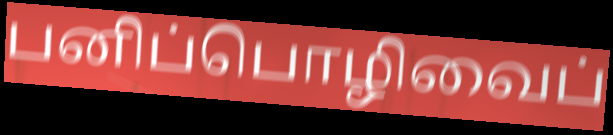
பனிப்பொழிவைப்